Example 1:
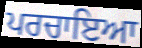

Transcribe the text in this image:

ਪਰਚਾਇਆ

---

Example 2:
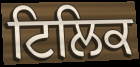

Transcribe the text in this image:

ਟਿਲਿਕ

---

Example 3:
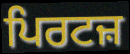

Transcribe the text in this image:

ਪਿਰਟਜ਼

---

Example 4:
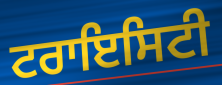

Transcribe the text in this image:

ਟਰਾਇਸਿਟੀ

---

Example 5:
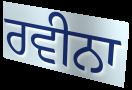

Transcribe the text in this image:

ਰਵੀਨਾ